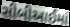
સીબીઆઈમાં